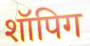
शॉपिग